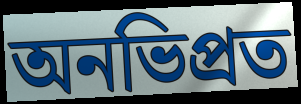
অনভিপ্রত